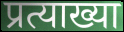
प्रत्याख्या